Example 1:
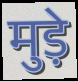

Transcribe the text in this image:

मुड़े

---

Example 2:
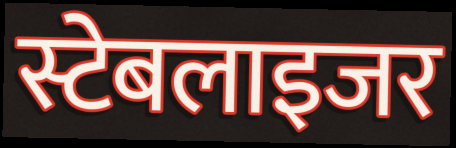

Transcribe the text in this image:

स्टेबलाइजर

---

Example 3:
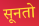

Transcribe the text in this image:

सूनतो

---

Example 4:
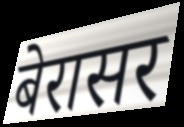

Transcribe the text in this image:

बेरासर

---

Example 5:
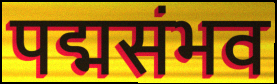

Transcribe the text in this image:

पद्मसंभव